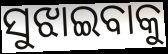
ସୁଝାଇବାକୁ